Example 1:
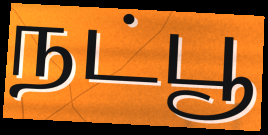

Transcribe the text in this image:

நட்பூ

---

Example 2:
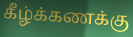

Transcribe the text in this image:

கீழ்க்கணக்கு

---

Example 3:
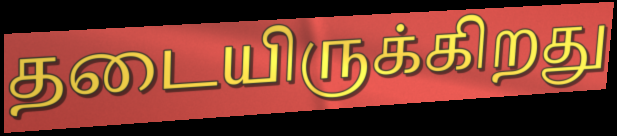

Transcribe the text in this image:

தடையிருக்கிறது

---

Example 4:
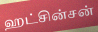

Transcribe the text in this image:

ஹட்சின்சன்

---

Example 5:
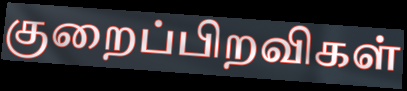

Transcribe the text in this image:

குறைப்பிறவிகள்